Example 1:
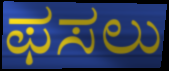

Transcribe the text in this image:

ಫಸಲು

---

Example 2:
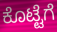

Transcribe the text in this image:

ಕೊಟ್ಟೆಗೆ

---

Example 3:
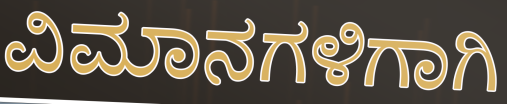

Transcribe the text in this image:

ವಿಮಾನಗಳಿಗಾಗಿ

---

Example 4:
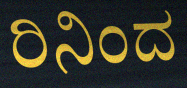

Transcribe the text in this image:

ರಿನಿಂದ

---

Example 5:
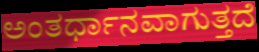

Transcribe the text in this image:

ಅಂತರ್ಧಾನವಾಗುತ್ತದೆ